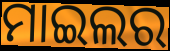
ମାଇଲର